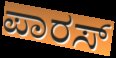
ಪಾರಸ್